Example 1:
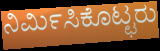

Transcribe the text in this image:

ನಿರ್ಮಿಸಿಕೊಟ್ಟರು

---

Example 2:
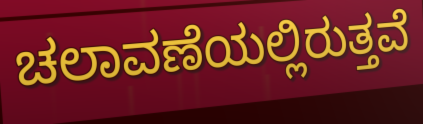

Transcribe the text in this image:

ಚಲಾವಣೆಯಲ್ಲಿರುತ್ತವೆ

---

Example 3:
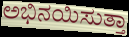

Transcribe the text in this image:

ಅಭಿನಯಿಸುತ್ತಾ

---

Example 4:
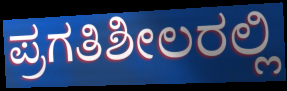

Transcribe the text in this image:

ಪ್ರಗತಿಶೀಲರಲ್ಲಿ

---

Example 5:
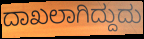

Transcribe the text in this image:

ದಾಖಲಾಗಿದ್ದುದು